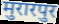
मुरारपुर